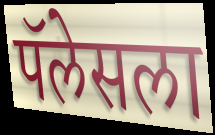
पॅलेसला